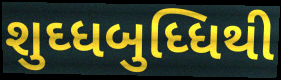
શુઘ્ધબુધ્ધિથી